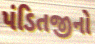
પંડિતજીનો